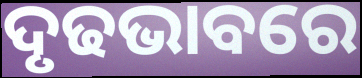
ଦୃଢଭାବରେ